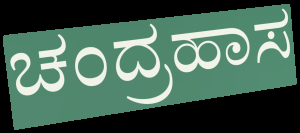
ಚಂದ್ರಹಾಸ